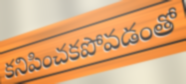
కనిపించకపోవడంతో